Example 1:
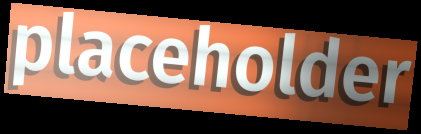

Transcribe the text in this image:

placeholder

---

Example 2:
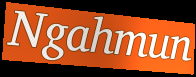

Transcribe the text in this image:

Ngahmun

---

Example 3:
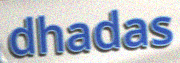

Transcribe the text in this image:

dhadas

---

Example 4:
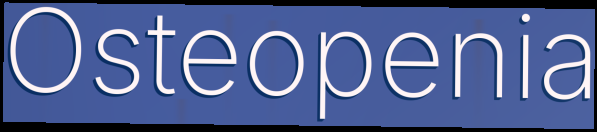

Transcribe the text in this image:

Osteopenia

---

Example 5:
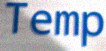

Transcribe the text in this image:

Temp